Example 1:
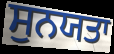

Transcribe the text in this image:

ਸੁਨਯਤਾ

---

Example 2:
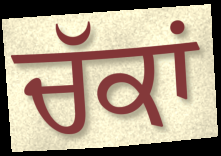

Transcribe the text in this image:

ਚੱਕਾਂ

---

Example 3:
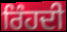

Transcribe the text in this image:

ਰਿੰਹਦੀ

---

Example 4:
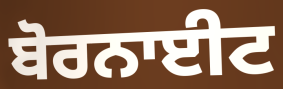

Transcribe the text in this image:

ਬੋਰਨਾਈਟ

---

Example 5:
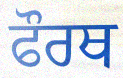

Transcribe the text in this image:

ਫੌਰਥ